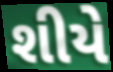
શીયે